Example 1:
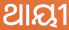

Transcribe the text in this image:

ଥାୟୀ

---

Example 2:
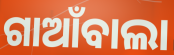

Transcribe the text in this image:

ଗାଆଁବାଲା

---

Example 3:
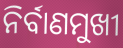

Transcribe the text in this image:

ନିର୍ବାଣମୁଖୀ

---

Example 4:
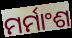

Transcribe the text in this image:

ମର୍ମାଂଶ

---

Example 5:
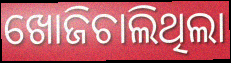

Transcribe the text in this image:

ଖୋଜିଚାଲିଥିଲା